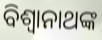
ବିଶ୍ୱାନାଥଙ୍କ